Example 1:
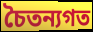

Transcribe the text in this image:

চৈতন্যগত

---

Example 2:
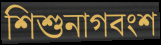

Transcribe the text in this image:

শিশুনাগবংশ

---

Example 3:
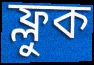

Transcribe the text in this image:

ফ্লুক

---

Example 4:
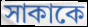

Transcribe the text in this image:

সাকাকে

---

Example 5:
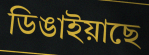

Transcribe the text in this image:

ডিঙাইয়াছে